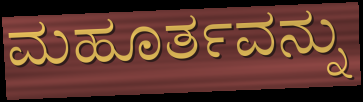
ಮಹೂರ್ತವನ್ನು